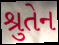
શ્રુતેન